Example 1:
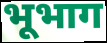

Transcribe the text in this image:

भूभाग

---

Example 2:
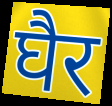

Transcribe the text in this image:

घैर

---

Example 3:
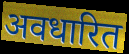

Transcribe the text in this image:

अवधारित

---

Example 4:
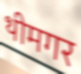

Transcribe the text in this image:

थीमगर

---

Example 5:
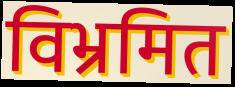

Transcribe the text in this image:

विभ्रमित